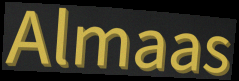
Almaas